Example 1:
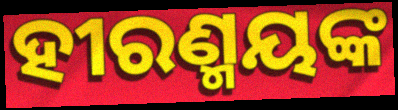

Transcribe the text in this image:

ହୀରଣ୍ମୟଙ୍କ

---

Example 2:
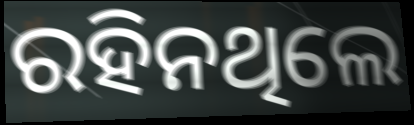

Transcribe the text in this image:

ରହିନଥିଲେ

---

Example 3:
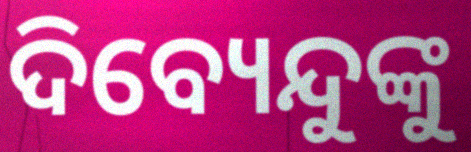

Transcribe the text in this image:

ଦିବ୍ୟେନ୍ଦୁଙ୍କୁ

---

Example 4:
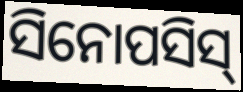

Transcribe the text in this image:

ସିନୋପସିସ୍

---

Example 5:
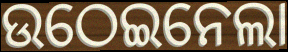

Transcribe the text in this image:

ଉଠେଇନେଲା